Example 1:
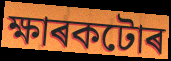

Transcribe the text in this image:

ক্ষাৰকটোৰ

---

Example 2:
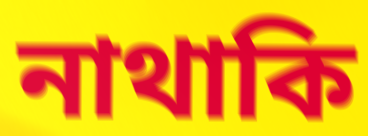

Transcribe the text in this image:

নাথাকি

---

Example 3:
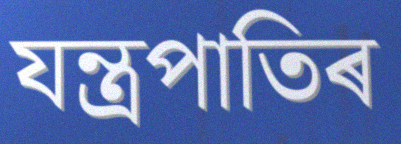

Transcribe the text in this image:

যন্ত্ৰপাতিৰ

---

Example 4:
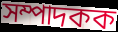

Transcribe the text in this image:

সম্পাদকক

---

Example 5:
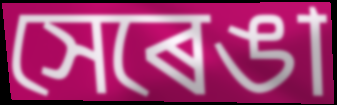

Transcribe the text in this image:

সেৰেঙা